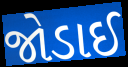
જોડાઈ